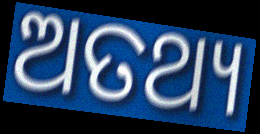
ଅତଥ୍ୟ